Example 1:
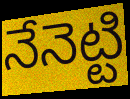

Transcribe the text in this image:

నేనెట్టి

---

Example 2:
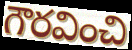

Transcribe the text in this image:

గౌరవించి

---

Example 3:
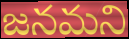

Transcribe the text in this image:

జనమని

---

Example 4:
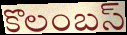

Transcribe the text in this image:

కొలంబస్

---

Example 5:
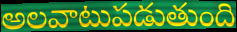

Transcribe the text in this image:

అలవాటుపడుతుంది